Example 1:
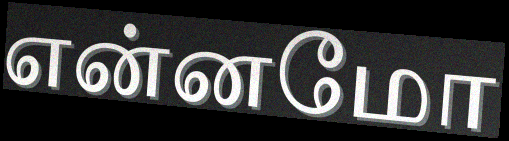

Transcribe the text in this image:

என்னமோ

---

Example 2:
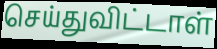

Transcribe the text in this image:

செய்துவிட்டாள்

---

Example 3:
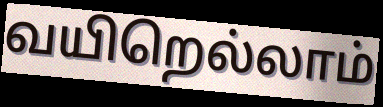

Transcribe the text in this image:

வயிறெல்லாம்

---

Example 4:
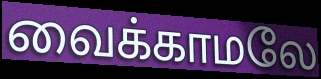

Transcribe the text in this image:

வைக்காமலே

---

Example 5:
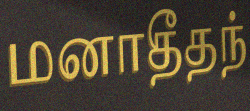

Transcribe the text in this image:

மனாதீதந்